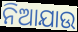
ନିଆଯାଉ